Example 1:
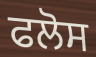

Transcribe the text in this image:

ਫਲੋਸ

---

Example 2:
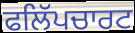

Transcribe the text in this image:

ਫਲਿੱਪਚਾਰਟ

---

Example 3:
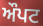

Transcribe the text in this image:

ਔਪਟ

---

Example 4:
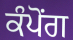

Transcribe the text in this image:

ਕੰਪੋਂਗ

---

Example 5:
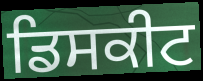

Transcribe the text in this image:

ਡਿਸਕੀਟ